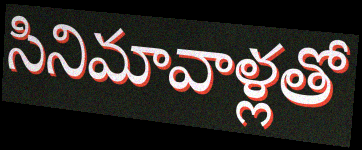
సినిమావాళ్లతో